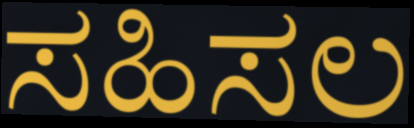
ಸಹಿಸಲ